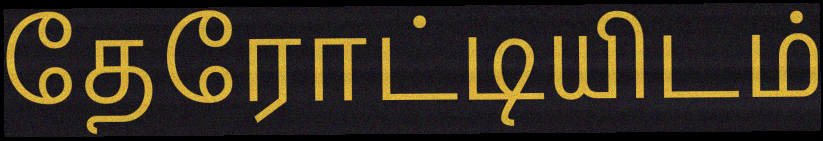
தேரோட்டியிடம்